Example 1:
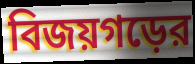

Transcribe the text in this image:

বিজয়গড়ের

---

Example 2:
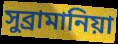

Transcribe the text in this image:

সুব্রামানিয়া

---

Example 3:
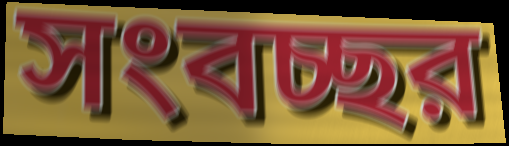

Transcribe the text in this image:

সংবচ্ছর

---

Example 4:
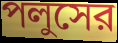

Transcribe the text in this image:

পলুসের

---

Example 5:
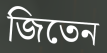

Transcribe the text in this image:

জিতেন